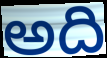
అది